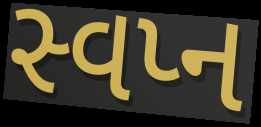
સ્વપ્ન